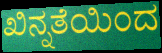
ಖಿನ್ನತೆಯಿಂದ